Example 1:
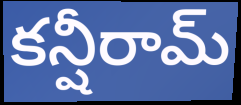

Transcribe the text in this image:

కన్షీరామ్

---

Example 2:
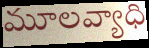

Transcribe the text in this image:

మూలవ్యాధి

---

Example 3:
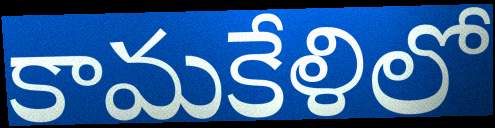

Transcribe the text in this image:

కామకేళిలో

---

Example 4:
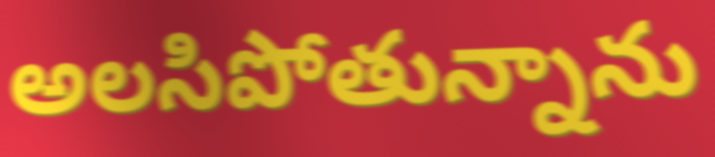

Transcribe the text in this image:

అలసిపోతున్నాను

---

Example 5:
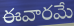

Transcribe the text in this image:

ఈవారమే